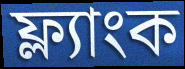
ফ্ল্যাংক